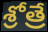
శ్రోత్రే